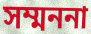
সম্মননা